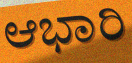
ಆಭಾರಿ